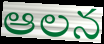
ఆలన